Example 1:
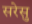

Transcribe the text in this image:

सरेसु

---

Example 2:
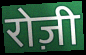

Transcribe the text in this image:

रोज़ी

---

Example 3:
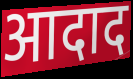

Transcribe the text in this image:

आदाद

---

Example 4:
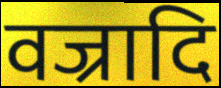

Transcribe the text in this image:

वज्रादि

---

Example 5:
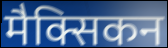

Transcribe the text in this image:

मैक्सिकन